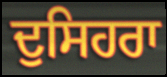
ਦੁਸਿਹਰਾ